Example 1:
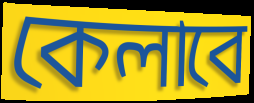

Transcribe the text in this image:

কেলাবে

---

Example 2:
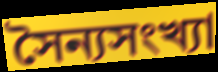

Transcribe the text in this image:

সৈন্যসংখ্যা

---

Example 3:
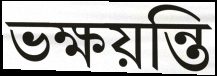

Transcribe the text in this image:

ভক্ষয়ন্তি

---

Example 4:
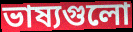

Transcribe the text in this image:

ভাষ্যগুলো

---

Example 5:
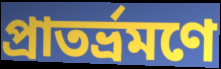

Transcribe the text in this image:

প্রাতর্ভ্রমণে